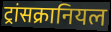
ट्रांसक्रानियल